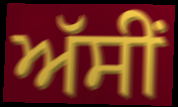
ਅੱਸੀਂ